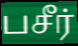
பசீர்